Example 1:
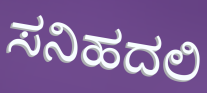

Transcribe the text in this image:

ಸನಿಹದಲಿ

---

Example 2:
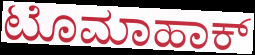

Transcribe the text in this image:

ಟೊಮಾಹಾಕ್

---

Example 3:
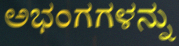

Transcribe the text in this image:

ಅಭಂಗಗಳನ್ನು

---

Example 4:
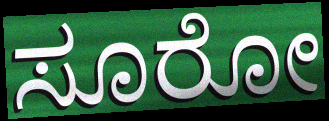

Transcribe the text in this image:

ಸೂರೋ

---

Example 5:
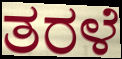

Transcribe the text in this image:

ತರಳೆ